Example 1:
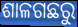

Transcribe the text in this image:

ଶାଳଗଛରୁ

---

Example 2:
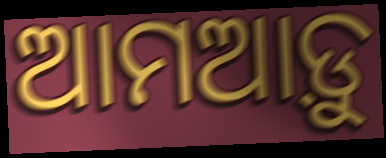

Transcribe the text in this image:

ଆମଆଡ଼ୁ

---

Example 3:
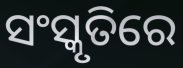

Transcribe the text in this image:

ସଂସ୍କୃତିରେ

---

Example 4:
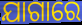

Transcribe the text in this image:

ଯାଗାରେ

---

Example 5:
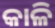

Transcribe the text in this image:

କାଳି